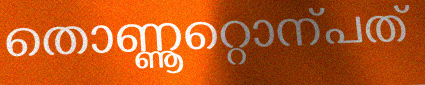
തൊണ്ണൂറ്റൊന്പത്